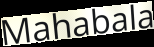
Mahabala